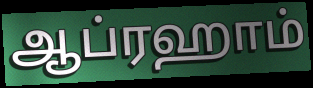
ஆப்ரஹாம்